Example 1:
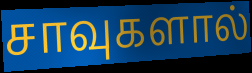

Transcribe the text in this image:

சாவுகளால்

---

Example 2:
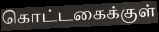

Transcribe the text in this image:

கொட்டகைக்குள்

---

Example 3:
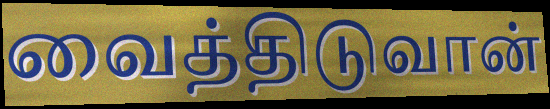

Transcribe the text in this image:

வைத்திடுவான்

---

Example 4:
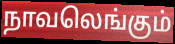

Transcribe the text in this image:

நாவலெங்கும்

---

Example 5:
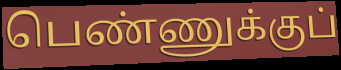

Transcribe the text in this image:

பெண்ணுக்குப்